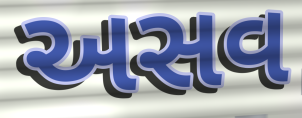
અસવ